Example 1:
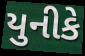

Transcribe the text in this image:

યુનીકે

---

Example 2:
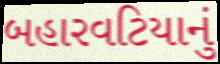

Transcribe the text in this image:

બહારવટિયાનું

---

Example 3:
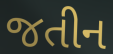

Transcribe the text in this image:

જતીન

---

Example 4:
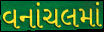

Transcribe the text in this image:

વનાંચલમાં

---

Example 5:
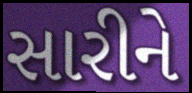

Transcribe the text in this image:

સારીને